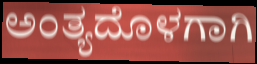
ಅಂತ್ಯದೊಳಗಾಗಿ